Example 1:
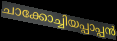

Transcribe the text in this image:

ചാക്കോച്ചിയപ്പാപ്പൻ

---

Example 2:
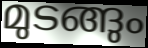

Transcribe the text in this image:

മുടങ്ങും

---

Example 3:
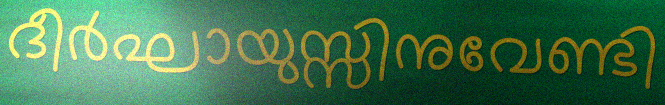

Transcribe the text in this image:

ദീർഘായുസ്സിനുവേണ്ടി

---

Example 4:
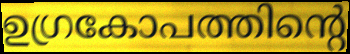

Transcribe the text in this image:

ഉഗ്രകോപത്തിന്റെ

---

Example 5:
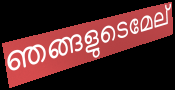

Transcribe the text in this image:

ഞങ്ങളുടെമേല്